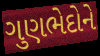
ગુણભેદોને